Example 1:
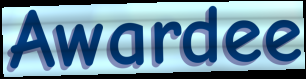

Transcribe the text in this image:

Awardee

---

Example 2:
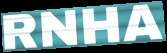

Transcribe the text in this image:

RNHA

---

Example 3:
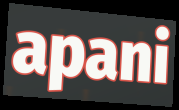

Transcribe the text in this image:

apani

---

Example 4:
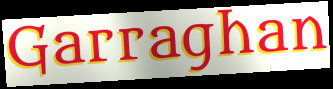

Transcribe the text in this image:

Garraghan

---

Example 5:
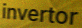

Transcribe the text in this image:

invertor